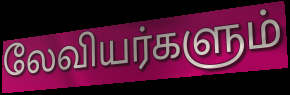
லேவியர்களும்